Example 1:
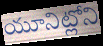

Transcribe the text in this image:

యూనిట్లోని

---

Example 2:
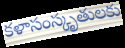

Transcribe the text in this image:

కళాసంస్కృతులకు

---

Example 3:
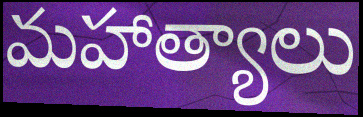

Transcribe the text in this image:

మహాత్యాలు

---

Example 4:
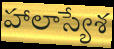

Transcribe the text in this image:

హాలాస్యేశ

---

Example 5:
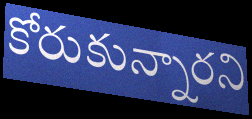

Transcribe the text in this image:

కోరుకున్నారని